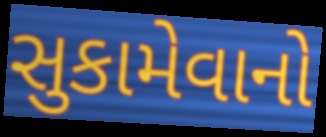
સુકામેવાનો